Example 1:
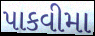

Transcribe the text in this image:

પાકવીમા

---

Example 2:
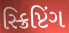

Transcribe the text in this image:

સ્ક્રિપ્ટિંગ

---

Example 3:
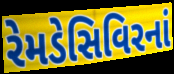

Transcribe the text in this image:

રેમડેસિવિરનાં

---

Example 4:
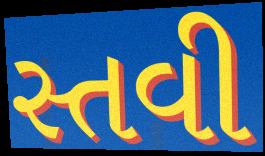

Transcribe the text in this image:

સ્તવી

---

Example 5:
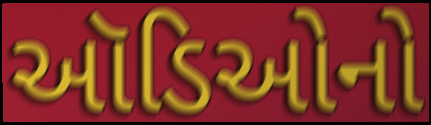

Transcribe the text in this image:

ઑડિઓનો